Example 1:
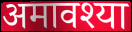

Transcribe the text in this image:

अमावश्या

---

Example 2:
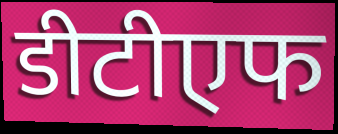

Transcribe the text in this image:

डीटीएफ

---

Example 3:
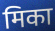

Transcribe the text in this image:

मिका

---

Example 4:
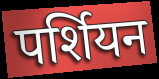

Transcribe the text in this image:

पर्शियन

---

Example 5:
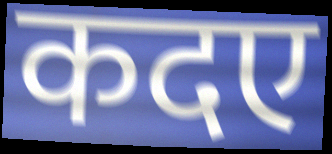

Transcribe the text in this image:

कदए